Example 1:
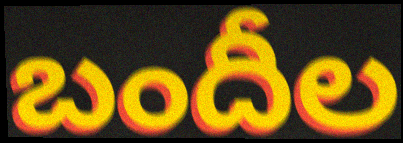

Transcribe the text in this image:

బందీల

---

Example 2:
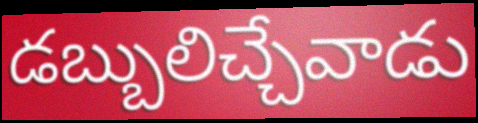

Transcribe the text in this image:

డబ్బులిచ్చేవాడు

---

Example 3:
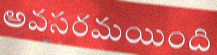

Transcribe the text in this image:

అవసరమయింది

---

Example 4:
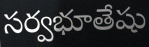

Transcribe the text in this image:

సర్వభూతేషు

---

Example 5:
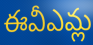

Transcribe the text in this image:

ఈవీఎమ్ల